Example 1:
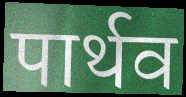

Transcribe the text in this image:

पार्थव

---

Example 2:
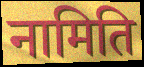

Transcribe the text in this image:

नामिति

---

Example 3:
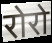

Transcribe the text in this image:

रोरो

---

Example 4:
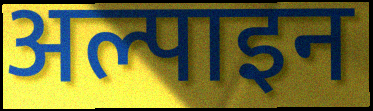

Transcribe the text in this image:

अल्पाइन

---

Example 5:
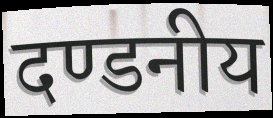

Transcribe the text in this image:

दण्डनीय